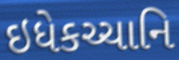
ઇધેકચ્ચાનિ